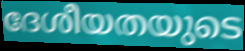
ദേശീയതയുടെ